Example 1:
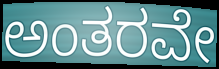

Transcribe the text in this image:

ಅಂತರವೇ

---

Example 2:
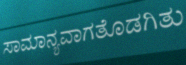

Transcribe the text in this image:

ಸಾಮಾನ್ಯವಾಗತೊಡಗಿತು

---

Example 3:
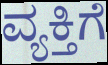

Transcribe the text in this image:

ವ್ಯಕ್ತಿಗೆ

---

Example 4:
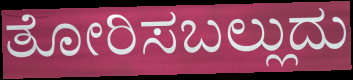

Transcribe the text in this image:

ತೋರಿಸಬಲ್ಲುದು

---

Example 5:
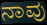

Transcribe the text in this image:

ನಾವು